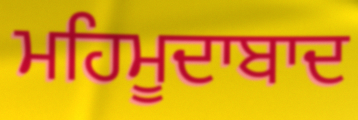
ਮਹਿਮੂਦਾਬਾਦ